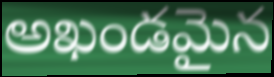
అఖండమైన